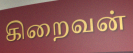
கிறைவன்